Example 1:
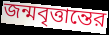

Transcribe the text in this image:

জন্মবৃত্তান্তের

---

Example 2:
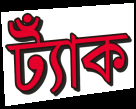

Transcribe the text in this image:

ট্যাঁক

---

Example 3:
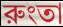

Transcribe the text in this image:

রুংতা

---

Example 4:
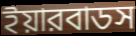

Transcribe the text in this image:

ইয়ারবাডস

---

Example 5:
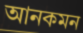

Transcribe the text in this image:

আনকমন